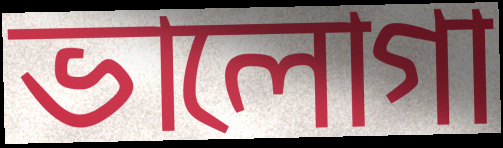
ভালোগা